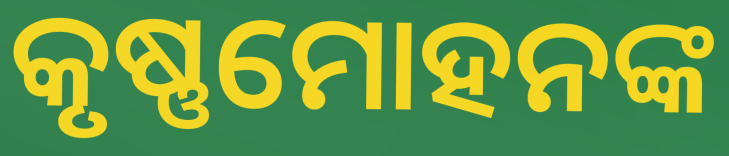
କୃଷ୍ଣମୋହନଙ୍କ